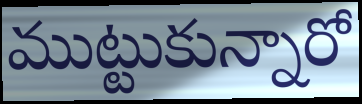
ముట్టుకున్నారో